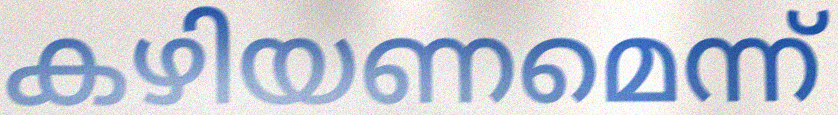
കഴിയണമെന്ന്